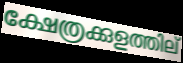
ക്ഷേത്രക്കുളത്തില്